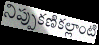
నిప్పుకణికల్లాంటి